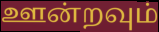
ஊன்றவும்